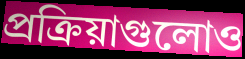
প্রক্রিয়াগুলোও